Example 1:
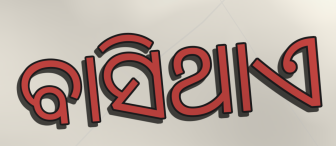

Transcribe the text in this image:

ବାସିଥାଏ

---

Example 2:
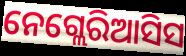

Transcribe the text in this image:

ନେଗ୍ଲେରିଆସିସ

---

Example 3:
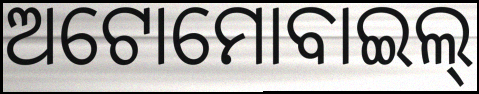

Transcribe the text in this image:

ଅଟୋମୋବାଇଲ୍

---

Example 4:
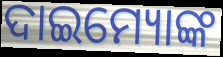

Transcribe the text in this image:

ଦାଇମ୍ଯୋଙ୍କ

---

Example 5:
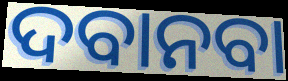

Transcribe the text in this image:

ଦବାନବା